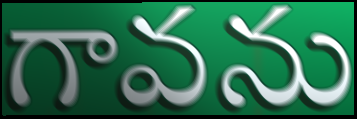
గావను